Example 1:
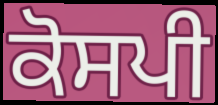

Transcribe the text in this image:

ਕੋਸਪੀ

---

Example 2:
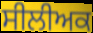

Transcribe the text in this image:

ਸੀਲੀਅਕ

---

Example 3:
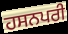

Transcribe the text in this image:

ਹਸਨਪਰੀ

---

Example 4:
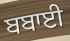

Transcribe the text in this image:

ਬਬਾਈ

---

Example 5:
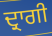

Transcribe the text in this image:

ਦ੍ਰਾਗੀ